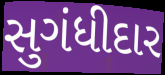
સુગંધીદાર